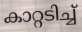
കാറ്റടിച്ച്